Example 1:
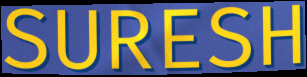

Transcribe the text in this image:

SURESH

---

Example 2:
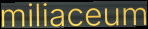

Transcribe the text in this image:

miliaceum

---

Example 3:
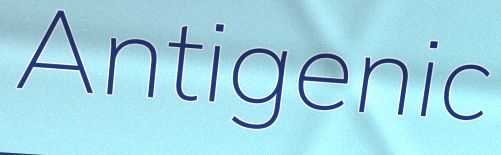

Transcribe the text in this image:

Antigenic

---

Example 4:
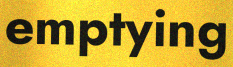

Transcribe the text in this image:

emptying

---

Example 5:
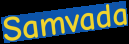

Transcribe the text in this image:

Samvada